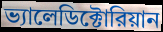
ভ্যালেডিক্টোরিয়ান